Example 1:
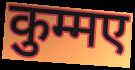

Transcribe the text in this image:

कुम्मए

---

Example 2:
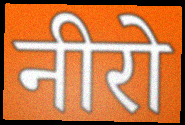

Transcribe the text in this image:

नीरो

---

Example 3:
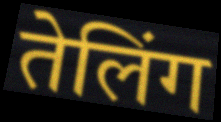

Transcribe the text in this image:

तेलिंग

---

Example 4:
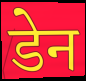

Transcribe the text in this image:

डेन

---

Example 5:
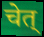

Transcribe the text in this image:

चेत्